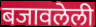
बजावलेली